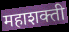
महाशक्ती